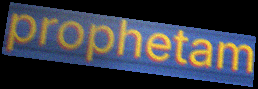
prophetam